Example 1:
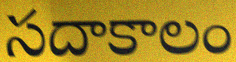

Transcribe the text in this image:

సదాకాలం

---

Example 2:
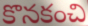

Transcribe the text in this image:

కొనకంచి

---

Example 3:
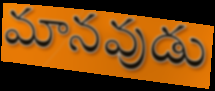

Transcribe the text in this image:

మానవుడు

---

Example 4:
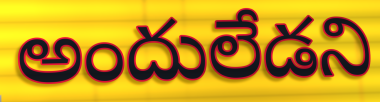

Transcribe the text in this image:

అందులేడని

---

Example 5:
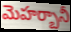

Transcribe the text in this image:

మెహర్బానీ